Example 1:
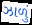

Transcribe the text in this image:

ઝાળું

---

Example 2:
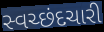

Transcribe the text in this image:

સ્વચ્છંદચારી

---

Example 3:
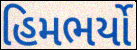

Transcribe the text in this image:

હિમભર્યો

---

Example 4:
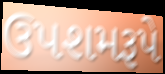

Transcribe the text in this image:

ઉપશમરૂપે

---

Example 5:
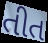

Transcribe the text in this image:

તીત